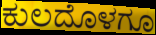
ಕುಲದೊಳಗೂ